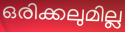
ഒരിക്കലുമില്ല